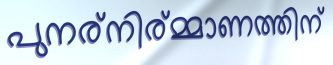
പുനര്നിര്മ്മാണത്തിന്